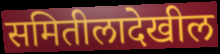
समितीलादेखील